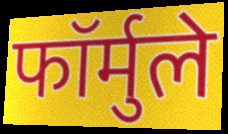
फॉर्मुले